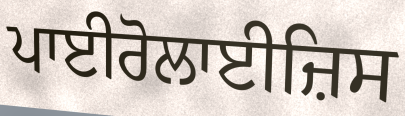
ਪਾਈਰੋਲਾਈਜ਼ਿਸ